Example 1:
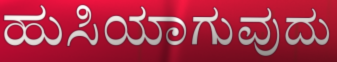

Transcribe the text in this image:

ಹುಸಿಯಾಗುವುದು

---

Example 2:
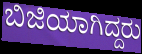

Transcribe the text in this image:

ಬಿಜಿಯಾಗಿದ್ದರು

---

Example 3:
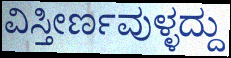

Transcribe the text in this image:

ವಿಸ್ತೀರ್ಣವುಳ್ಳದ್ದು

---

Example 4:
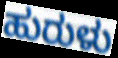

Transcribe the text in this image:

ಹುರುಳು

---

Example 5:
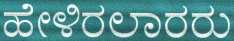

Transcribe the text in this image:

ಹೇಳಿರಲಾರರು